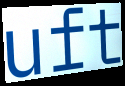
uft